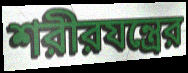
শরীরযন্ত্রের